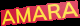
AMARA